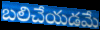
బలిచేయడమే